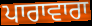
ਪਾਰਾਵਾਰਾ